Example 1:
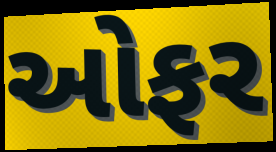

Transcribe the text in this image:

ઓફર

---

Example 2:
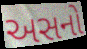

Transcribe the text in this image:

અસનો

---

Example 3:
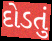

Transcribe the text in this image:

દોડતું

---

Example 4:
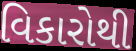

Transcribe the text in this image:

વિકારોથી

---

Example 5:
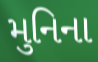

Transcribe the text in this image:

મુનિના